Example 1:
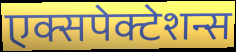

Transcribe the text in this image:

एक्सपेक्टेशन्स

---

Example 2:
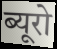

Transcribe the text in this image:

ब्‍यूरो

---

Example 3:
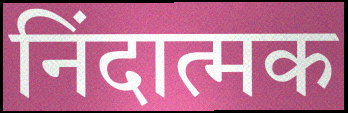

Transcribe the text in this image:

निंदात्मक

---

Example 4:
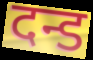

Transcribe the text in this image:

दन्ड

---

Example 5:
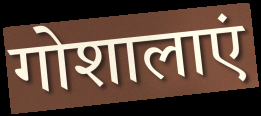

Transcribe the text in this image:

गोशालाएं